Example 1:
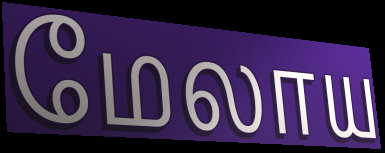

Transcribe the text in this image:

மேலாய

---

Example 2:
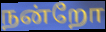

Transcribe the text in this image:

நன்றோ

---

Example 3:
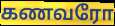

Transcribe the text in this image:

கணவரோ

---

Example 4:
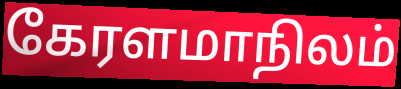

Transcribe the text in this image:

கேரளமாநிலம்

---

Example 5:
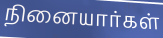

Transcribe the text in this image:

நினையார்கள்